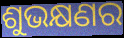
ଶୁଭକ୍ଷଣର